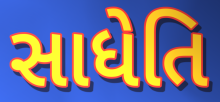
સાધેતિ